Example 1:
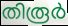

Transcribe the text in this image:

തിരൂർ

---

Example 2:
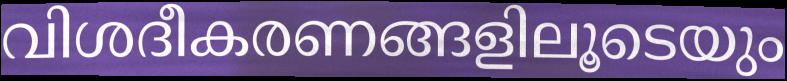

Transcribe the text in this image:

വിശദീകരണങ്ങളിലൂടെയും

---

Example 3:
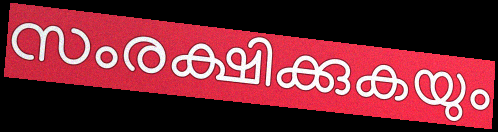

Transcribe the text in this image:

സംരക്ഷിക്കുകയും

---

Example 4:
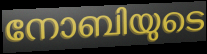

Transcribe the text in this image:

നോബിയുടെ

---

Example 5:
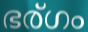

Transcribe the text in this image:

ഭര്ഗം